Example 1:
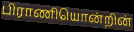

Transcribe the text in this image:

பிராணியொன்றின்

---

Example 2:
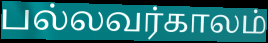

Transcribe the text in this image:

பல்லவர்காலம்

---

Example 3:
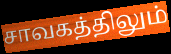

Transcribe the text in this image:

சாவகத்திலும்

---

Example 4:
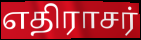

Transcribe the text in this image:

எதிராசர்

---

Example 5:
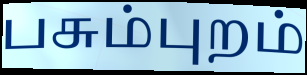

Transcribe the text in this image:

பசும்புறம்